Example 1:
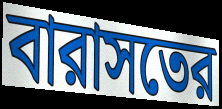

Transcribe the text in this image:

বারাসতের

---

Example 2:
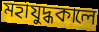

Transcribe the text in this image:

মহাযুদ্ধকালে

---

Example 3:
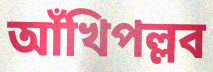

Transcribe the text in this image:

আঁখিপল্লব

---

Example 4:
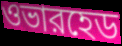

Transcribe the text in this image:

ওভারহেড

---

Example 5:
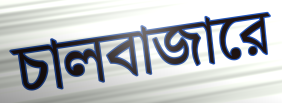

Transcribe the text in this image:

চালবাজারে